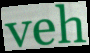
veh